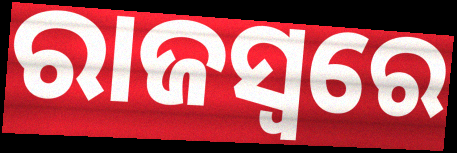
ରାଜସ୍ବରେ